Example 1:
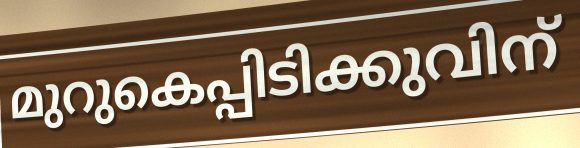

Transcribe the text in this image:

മുറുകെപ്പിടിക്കുവിന്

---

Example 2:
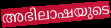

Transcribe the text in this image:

അഭിലാഷയുടെ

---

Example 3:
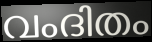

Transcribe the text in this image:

വംദിതം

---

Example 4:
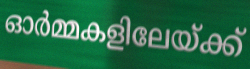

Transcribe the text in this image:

ഓർമ്മകളിലേയ്ക്ക്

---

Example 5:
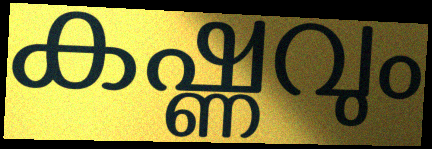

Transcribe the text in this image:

കഷ്ണവും